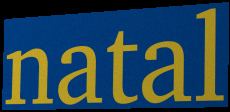
natal